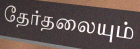
தேர்தலையும்